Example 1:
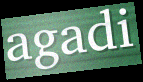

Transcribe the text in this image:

agadi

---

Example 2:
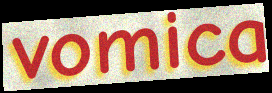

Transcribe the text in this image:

vomica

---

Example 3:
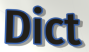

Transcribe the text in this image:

Dict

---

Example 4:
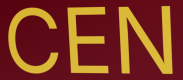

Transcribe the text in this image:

CEN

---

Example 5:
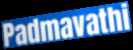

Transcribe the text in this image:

Padmavathi